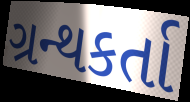
ગ્રન્થકર્તા